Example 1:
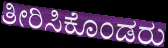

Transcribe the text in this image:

ತೀರಿಸಿಕೊಂಡರು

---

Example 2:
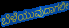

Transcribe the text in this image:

ಬೆಳೆಯುವುದಾಗಲೀ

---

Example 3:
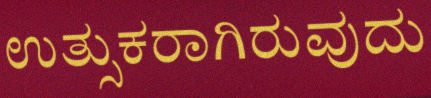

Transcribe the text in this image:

ಉತ್ಸುಕರಾಗಿರುವುದು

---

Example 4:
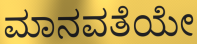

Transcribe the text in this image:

ಮಾನವತೆಯೇ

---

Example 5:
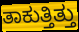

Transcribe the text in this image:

ತಾಕುತ್ತಿತ್ತು